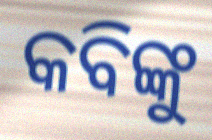
କବିଙ୍କୁ